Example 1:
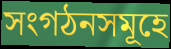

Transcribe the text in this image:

সংগঠনসমূহে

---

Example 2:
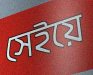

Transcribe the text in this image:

সেইয়ে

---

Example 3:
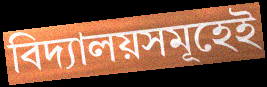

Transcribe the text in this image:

বিদ্যালয়সমূহেই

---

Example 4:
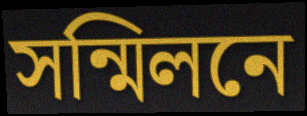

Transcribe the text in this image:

সন্মিলনে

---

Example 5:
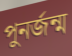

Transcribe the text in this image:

পুনৰ্জন্ম